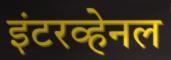
इंटरव्हेनल